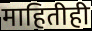
माहितीही